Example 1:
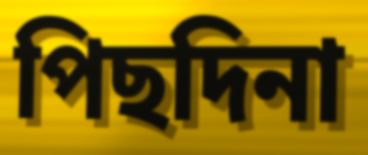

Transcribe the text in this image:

পিছদিনা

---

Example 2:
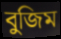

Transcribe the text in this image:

বুজিম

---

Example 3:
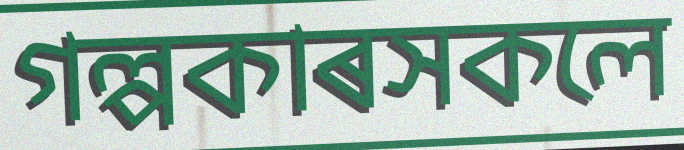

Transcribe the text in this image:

গল্পকাৰসকলে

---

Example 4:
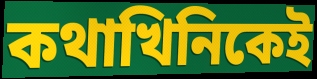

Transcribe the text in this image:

কথাখিনিকেই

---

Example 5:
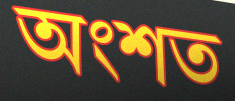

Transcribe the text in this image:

অংশত